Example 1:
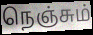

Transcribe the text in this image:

நெஞ்சும்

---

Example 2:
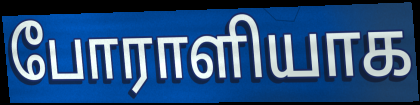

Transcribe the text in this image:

போராளியாக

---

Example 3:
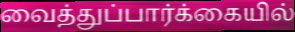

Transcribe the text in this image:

வைத்துப்பார்க்கையில்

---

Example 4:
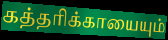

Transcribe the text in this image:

கத்தரிக்காயையும்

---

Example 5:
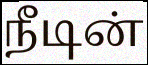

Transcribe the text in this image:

நீடின்